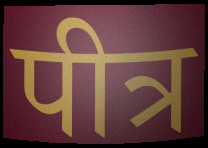
पीत्र